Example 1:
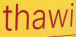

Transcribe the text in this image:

thawi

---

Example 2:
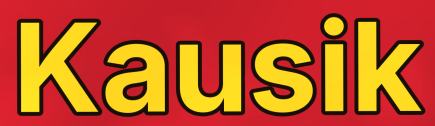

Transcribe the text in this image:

Kausik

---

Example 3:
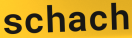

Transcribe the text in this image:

schach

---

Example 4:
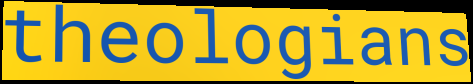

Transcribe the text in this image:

theologians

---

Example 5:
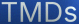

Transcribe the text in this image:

TMDs